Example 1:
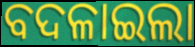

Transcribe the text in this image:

ବଦଳାଇଲା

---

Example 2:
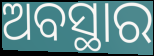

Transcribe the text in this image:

ଅବସ୍ଥାର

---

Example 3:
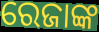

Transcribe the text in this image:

ରେଜାଙ୍କ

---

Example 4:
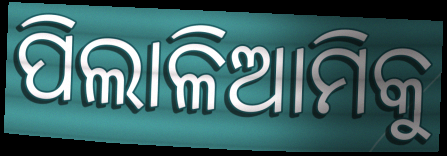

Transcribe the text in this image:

ପିଲାଳିଆମିକୁ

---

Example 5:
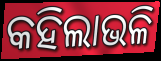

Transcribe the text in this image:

କହିଲାଭଳି